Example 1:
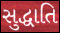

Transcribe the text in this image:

સુદ્ધાતિ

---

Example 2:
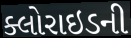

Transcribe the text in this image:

ક્લોરાઇડની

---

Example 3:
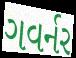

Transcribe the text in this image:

ગવર્નર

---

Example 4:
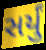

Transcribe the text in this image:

સર્યું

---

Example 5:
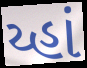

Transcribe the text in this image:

ય્હાં